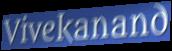
Vivekanand